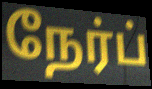
நேர்ப்